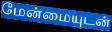
மேன்மையுடன்